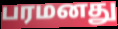
பரமனது